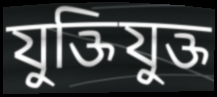
যুক্তিযুক্ত